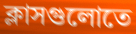
ক্লাসগুলোতে